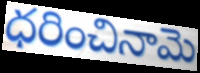
ధరించినామె